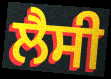
ਲੈਸੀ